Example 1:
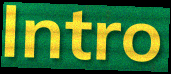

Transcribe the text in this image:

Intro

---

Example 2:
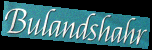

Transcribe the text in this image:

Bulandshahr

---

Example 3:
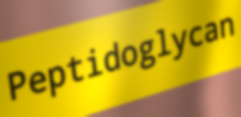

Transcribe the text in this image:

Peptidoglycan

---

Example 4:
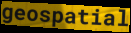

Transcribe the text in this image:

geospatial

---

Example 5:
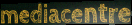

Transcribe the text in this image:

mediacentre